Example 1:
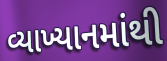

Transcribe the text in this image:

વ્યાખ્યાનમાંથી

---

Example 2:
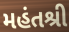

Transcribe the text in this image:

મહંતશ્રી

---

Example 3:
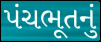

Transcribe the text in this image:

પંચભૂતનું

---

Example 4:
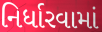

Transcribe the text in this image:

નિર્ધારવામાં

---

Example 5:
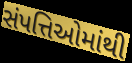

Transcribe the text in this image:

સંપત્તિઓમાંથી